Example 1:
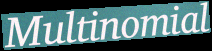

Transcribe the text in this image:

Multinomial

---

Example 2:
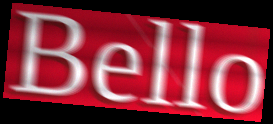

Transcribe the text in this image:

Bello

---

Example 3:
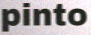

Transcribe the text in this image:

pinto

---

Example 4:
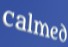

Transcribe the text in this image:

calmed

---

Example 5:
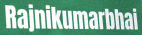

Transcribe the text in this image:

Rajnikumarbhai